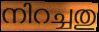
നിറച്ചതു